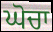
ਘੋਚਾ